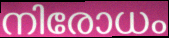
നിരോധം